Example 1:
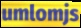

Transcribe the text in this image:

umlomjs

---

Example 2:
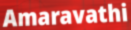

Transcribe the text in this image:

Amaravathi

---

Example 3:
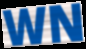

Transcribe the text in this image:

WN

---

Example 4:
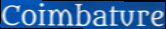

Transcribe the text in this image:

Coimbature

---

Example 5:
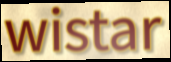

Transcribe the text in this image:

wistar